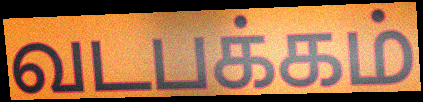
வடபக்கம்